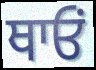
ਥਾਓਂ